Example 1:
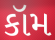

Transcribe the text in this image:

કૉમ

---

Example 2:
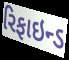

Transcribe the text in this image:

રિફાઇન્ડ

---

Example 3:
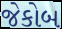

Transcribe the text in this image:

જેકોબ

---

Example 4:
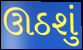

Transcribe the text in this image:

ઊઠશું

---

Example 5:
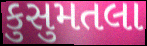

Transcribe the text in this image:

કુસુમતલા